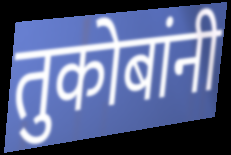
तुकोबांनी